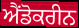
ਐਂਡੋਕਰੀਨ